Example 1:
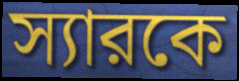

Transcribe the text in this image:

স্যারকে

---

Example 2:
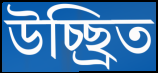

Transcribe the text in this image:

উচ্ছ্রিত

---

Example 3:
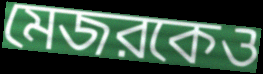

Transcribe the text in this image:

মেজরকেও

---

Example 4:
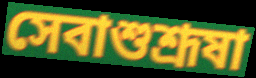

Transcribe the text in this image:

সেবাশুশ্রূষা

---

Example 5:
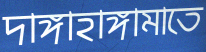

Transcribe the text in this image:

দাঙ্গাহাঙ্গামাতে